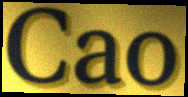
Cao